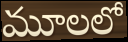
మూలలో